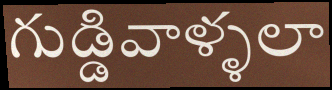
గుడ్డివాళ్ళలా